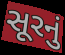
સૂરનું